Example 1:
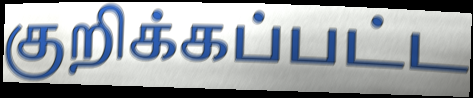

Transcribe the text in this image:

குறிக்கப்பட்ட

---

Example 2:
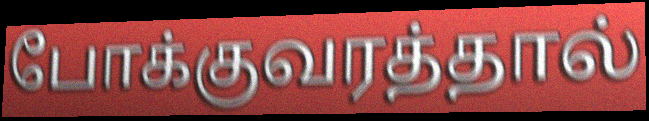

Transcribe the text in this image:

போக்குவரத்தால்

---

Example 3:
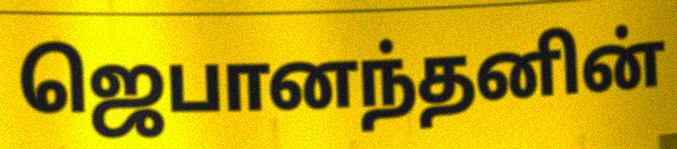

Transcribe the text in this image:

ஜெபானந்தனின்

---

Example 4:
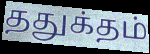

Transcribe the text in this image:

ததுக்தம்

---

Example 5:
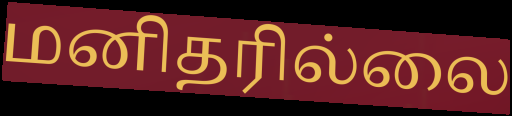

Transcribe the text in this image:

மனிதரில்லை